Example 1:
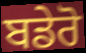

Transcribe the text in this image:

ਬਡੇਰੋ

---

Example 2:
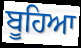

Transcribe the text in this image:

ਬੂਹਿਆ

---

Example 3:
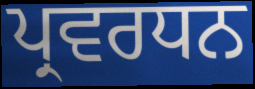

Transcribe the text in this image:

ਪ੍ਰਵਰਧਨ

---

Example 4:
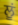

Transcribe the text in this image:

ਲੂਂ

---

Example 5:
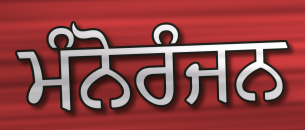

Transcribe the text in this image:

ਮੰਨੋਰੰਜਨ